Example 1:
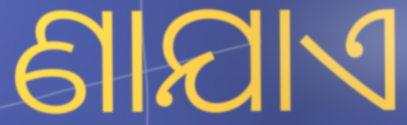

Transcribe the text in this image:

ଣାଯାଏ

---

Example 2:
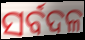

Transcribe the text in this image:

ସର୍ବଦଳ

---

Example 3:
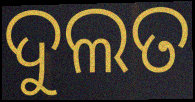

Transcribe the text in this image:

ଦୁଲତ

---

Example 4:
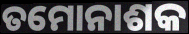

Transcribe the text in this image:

ତମୋନାଶକ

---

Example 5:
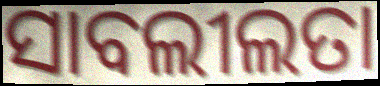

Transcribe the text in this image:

ସାବଲୀଲତା